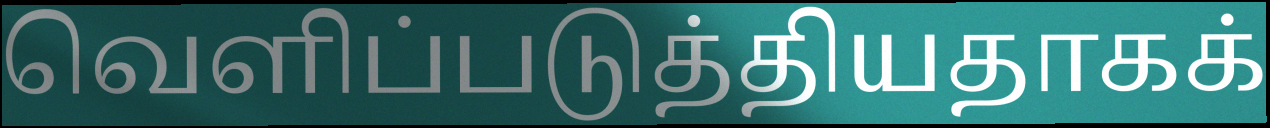
வெளிப்படுத்தியதாகக்